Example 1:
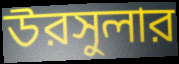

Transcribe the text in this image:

উরসুলার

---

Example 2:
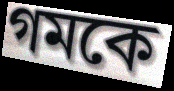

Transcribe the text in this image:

গমকে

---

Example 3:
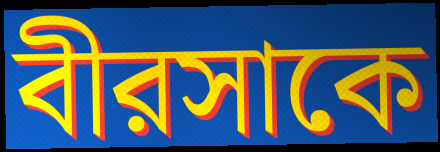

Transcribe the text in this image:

বীরসাকে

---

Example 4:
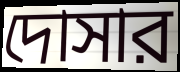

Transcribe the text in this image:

দোসার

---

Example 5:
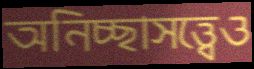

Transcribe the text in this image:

অনিচ্ছাসত্ত্বেও